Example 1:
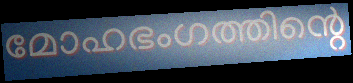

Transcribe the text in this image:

മോഹഭംഗത്തിന്റെ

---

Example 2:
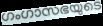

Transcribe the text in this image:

ഗംഗാസഭയുടെ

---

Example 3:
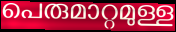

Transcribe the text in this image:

പെരുമാറ്റമുള്ള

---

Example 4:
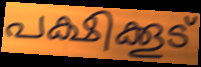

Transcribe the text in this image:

പക്ഷിക്കൂട്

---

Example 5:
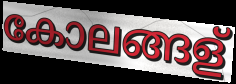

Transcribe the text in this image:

കോലങ്ങള്